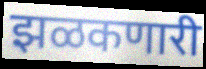
झळकणारी